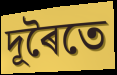
দূৰৈতে